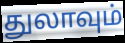
துலாவும்